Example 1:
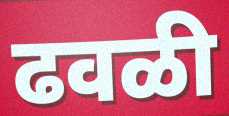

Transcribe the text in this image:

ढवळी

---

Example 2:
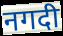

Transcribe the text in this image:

नगदी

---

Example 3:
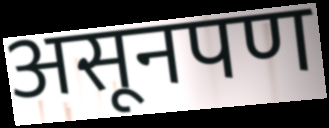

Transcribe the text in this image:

असूनपण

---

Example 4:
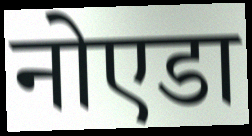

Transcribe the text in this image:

नोएडा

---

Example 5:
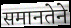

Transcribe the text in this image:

समानतेने